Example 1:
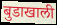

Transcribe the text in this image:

बुडाखाली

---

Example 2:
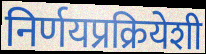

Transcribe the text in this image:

निर्णयप्रक्रियेशी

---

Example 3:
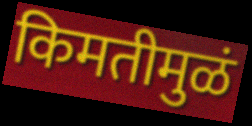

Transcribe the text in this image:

किमतीमुळं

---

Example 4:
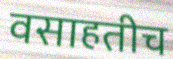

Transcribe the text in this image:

वसाहतीच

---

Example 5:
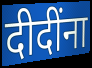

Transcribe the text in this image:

दीदींना